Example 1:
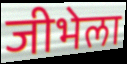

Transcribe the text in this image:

जीभेला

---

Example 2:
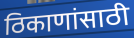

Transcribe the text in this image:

ठिकाणांसाठी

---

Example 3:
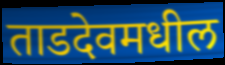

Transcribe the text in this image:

ताडदेवमधील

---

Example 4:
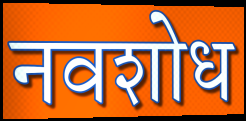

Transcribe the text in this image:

नवशोध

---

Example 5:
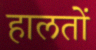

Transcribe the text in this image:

हालतों